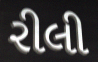
રીલી